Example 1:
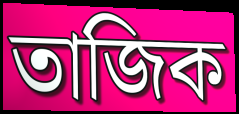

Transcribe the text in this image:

তাজিক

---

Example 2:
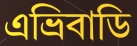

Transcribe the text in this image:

এভ্ৰিবাডি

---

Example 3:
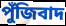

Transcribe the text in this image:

পুঁজিবাদ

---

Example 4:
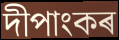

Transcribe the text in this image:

দীপাংকৰ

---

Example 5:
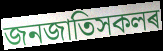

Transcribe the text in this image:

জনজাতিসকলৰ